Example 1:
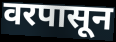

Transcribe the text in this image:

वरपासून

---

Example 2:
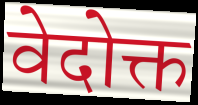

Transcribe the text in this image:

वेदोक्त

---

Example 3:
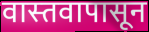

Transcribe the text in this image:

वास्तवापासून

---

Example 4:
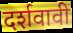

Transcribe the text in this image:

दर्शवावी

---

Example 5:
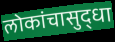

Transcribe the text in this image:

लोकांचासुद्धा